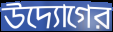
উদ্যোগের